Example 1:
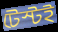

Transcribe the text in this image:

টেস্টই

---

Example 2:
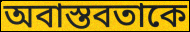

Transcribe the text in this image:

অবাস্তবতাকে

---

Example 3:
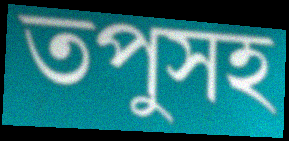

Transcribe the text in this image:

তপুসহ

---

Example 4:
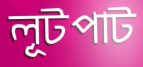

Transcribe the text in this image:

লূটপাট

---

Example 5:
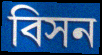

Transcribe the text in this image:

বিসন